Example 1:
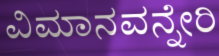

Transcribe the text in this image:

ವಿಮಾನವನ್ನೇರಿ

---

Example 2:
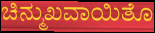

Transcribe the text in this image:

ಚಿನ್ಮುಖವಾಯಿತೊ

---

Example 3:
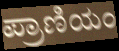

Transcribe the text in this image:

ಪ್ರಾಣಿಯಂ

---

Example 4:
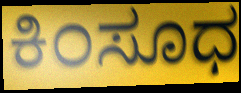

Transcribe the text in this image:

ಕಿಂಸೂಧ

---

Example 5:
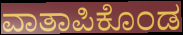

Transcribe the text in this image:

ವಾತಾಪಿಕೊಂಡ